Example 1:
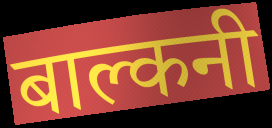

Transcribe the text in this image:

बाल्कनी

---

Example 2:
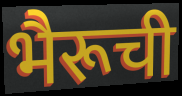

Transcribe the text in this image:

भैरूची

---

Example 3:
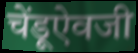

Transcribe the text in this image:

चेंडूऐवजी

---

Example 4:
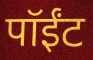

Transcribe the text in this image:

पॉईंट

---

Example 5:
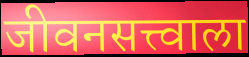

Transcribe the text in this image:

जीवनसत्त्वाला